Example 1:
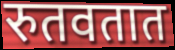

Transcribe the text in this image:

रुतवतात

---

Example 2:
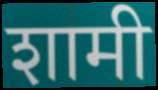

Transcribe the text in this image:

शामी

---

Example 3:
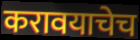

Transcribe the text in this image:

करावयाचेच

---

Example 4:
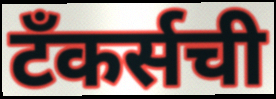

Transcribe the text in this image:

टँकर्सची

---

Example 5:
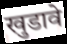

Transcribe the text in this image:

खुडावे